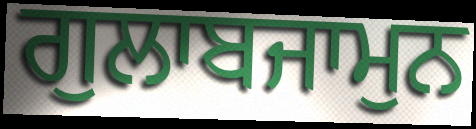
ਗੁਲਾਬਜਾਮੁਨ